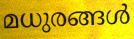
മധുരങ്ങൾ